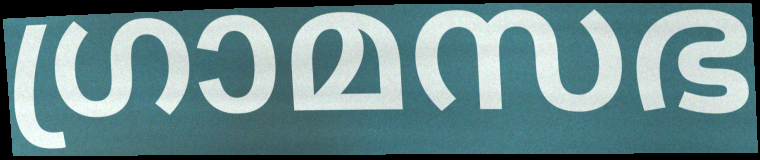
ഗ്രാമസഭ